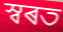
স্বৰত